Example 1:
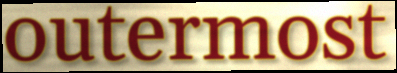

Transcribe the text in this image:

outermost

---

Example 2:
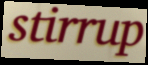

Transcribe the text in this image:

stirrup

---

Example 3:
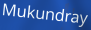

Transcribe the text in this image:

Mukundray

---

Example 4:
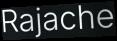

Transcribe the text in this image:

Rajache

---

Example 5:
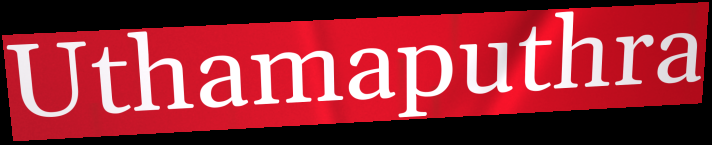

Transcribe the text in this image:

Uthamaputhra